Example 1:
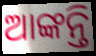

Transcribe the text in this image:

ଆଙ୍କନ୍ତି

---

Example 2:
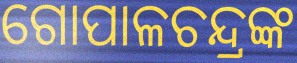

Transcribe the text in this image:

ଗୋପାଳଚନ୍ଦ୍ରଙ୍କ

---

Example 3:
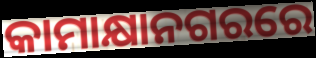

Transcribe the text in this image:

କାମାକ୍ଷାନଗରରେ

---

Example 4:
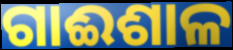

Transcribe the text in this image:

ଗାଈଶାଳ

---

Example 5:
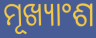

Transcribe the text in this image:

ମୂଖ୍ୟାଂଶ